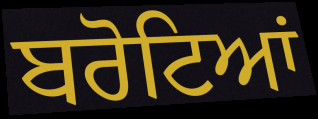
ਬਰੋਟਿਆਂ